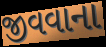
જીવવાના